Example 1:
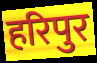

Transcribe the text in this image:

हरिपुर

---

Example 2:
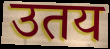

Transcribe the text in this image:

उतय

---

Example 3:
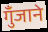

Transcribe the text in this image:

गुँजाने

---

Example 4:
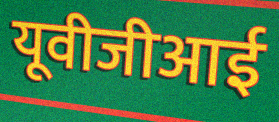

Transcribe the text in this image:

यूवीजीआई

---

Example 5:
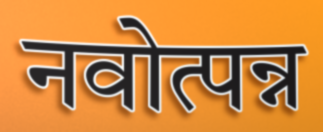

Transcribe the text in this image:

नवोत्पन्न